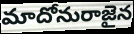
మాదోనురాజైన